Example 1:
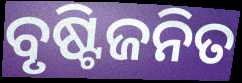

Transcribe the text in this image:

ବୃଷ୍ଟିଜନିତ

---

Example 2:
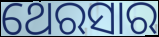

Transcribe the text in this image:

ଥେରସାର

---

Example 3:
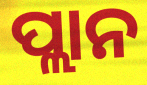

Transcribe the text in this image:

ପ୍ଲାନ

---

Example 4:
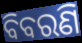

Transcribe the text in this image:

ବିବରଣି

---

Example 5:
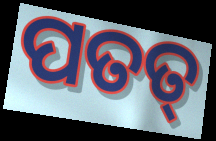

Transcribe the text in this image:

ପତତ୍